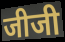
जीजी